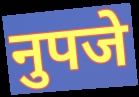
नुपजे